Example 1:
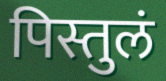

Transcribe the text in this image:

पिस्तुलं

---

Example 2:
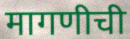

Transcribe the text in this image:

मागणीची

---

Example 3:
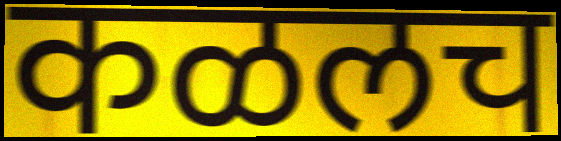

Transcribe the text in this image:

कळलच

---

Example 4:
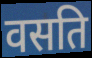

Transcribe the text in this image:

वसति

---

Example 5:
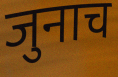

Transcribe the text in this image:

जुनाच